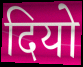
दियो